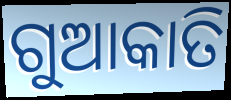
ଗୁଆକାତି